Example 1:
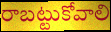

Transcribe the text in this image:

రాబట్టుకోవాలి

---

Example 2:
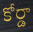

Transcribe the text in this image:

కోర్డా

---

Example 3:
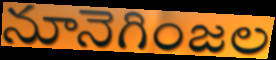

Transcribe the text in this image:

నూనెగింజల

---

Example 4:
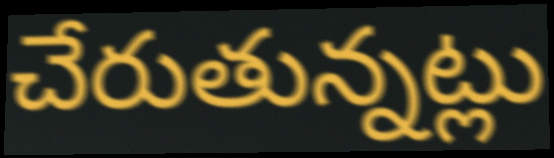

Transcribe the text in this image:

చేరుతున్నట్లు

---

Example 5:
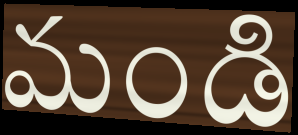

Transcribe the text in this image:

మండి